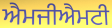
ਐਮਜੀਐਮਟੀ